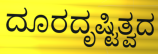
ದೂರದೃಷ್ಟಿತ್ವದ